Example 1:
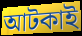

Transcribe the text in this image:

আটকাই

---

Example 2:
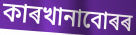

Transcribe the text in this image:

কাৰখানাবোৰৰ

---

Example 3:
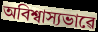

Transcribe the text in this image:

অবিশ্বাস্যভাৱে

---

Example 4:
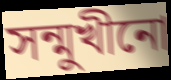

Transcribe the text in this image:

সন্মুখীনো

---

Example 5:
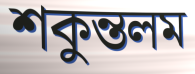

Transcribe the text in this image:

শকুন্তলম